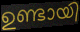
ഉണ്ടായി